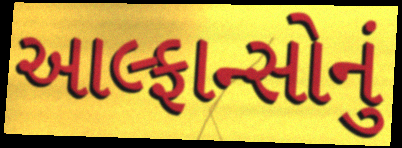
આલ્ફાન્સોનું